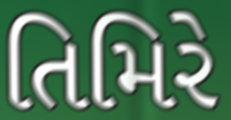
તિમિરે